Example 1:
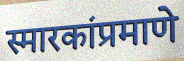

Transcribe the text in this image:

स्मारकांप्रमाणे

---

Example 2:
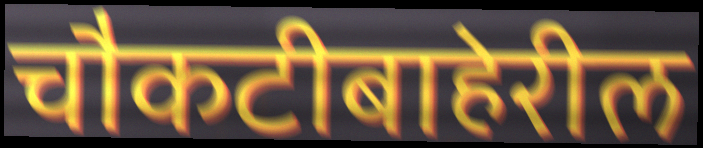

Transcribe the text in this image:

चौकटीबाहेरील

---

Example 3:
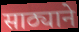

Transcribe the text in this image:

साठ्याने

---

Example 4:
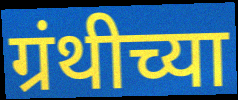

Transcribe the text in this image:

ग्रंथीच्या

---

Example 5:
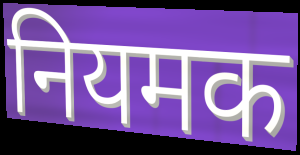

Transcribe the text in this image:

नियमक